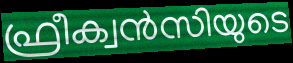
ഫ്രീക്വൻസിയുടെ